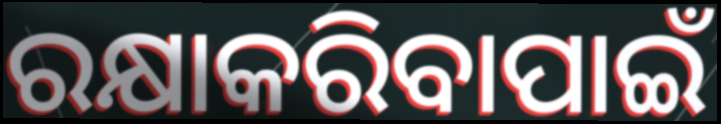
ରକ୍ଷାକରିବାପାଇଁ